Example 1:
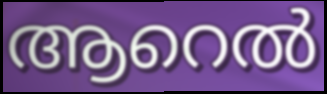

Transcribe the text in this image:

ആറെൽ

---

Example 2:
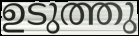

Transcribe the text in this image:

ഉടുത്തു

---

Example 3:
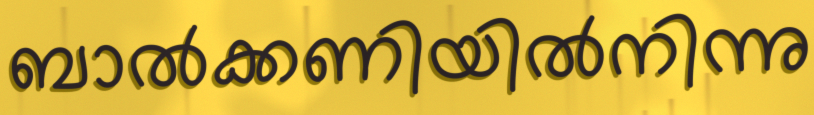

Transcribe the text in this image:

ബാൽക്കണിയിൽനിന്നു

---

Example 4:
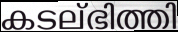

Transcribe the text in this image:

കടല്ഭിത്തി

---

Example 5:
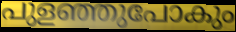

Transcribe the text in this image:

പുളഞ്ഞുപോകും